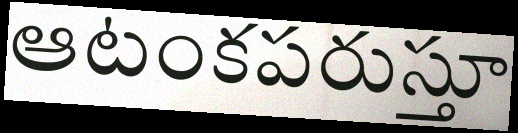
ఆటంకపరుస్తూ